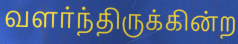
வளர்ந்திருக்கின்ற